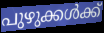
പുഴുക്കൾക്ക്